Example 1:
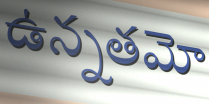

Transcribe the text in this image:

ఉన్నతమో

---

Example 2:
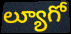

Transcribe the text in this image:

ల్యూగో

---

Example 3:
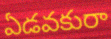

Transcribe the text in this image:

ఏడవకురా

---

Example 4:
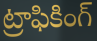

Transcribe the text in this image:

ట్రాఫికింగ్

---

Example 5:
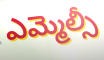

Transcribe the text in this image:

ఎమ్మెల్సీ